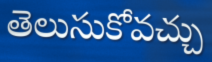
తెలుసుకోవచ్చు